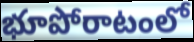
భూపోరాటంలో